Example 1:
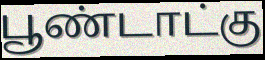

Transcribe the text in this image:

பூண்டாட்கு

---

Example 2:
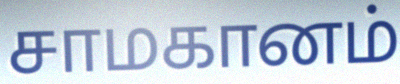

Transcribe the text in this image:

சாமகானம்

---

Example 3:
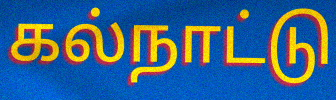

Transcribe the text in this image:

கல்நாட்டு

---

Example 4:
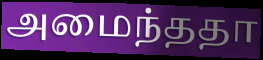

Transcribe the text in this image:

அமைந்ததா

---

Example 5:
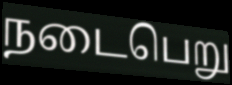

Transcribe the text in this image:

நடைபெறு